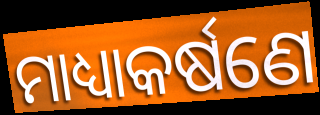
ମାଧ୍ୟାକର୍ଷଣେ